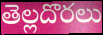
తెల్లదొరలు